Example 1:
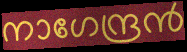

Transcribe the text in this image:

നാഗേന്ദ്രൻ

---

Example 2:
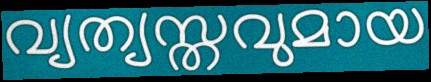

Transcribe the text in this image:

വ്യത്യസ്തവുമായ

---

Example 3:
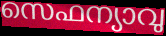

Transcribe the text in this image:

സെഫന്യാവു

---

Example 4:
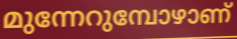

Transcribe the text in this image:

മുന്നേറുമ്പോഴാണ്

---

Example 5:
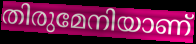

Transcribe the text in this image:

തിരുമേനിയാണ്